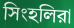
সিংহলিরা